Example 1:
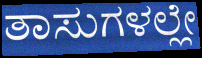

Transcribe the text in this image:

ತಾಸುಗಳಲ್ಲೇ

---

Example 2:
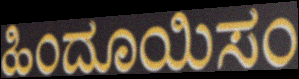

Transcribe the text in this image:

ಹಿಂದೂಯಿಸಂ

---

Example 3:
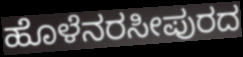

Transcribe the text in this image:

ಹೊಳೆನರಸೀಪುರದ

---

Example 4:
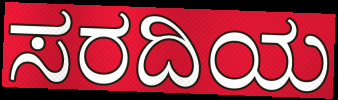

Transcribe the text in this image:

ಸರದಿಯ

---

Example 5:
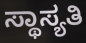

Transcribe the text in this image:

ಸ್ಥಾಸ್ಯತಿ